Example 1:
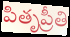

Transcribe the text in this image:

పితృప్రీతి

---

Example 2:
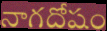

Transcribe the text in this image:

నాగదోషం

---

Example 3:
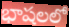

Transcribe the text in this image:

భాషలలో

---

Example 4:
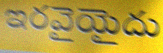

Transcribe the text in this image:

ఇరవైయైదు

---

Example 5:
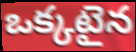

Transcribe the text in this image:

ఒక్కటైన